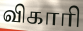
விகாரி